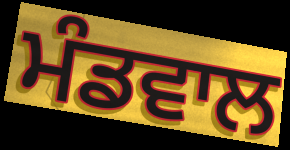
ਮੰਡਵਾਲ